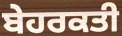
ਬੇਹਰਕਤੀ